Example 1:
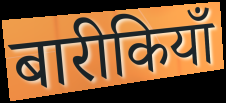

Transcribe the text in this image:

बारीकियाँ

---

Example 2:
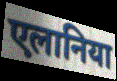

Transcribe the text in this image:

एलानिया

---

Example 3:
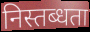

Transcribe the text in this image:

निस्तब्धता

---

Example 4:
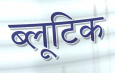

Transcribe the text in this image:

ब्लूटिक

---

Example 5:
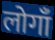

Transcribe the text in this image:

लोगाँ